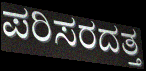
ಪರಿಸರದತ್ತ